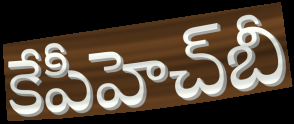
కేపీహెచ్‌బీ